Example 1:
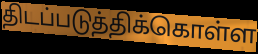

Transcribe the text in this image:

திடப்படுத்திக்கொள்ள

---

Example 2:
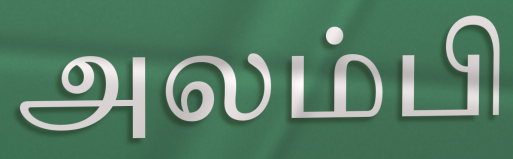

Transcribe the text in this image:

அலம்பி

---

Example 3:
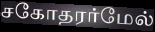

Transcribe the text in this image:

சகோதரர்மேல்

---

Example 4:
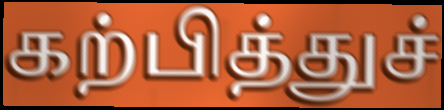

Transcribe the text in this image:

கற்பித்துச்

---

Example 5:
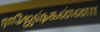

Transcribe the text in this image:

ராஜேஷ்கன்னா